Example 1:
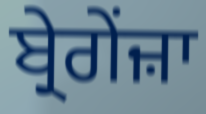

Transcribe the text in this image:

ਬ੍ਰੇਗੇਂਜ਼ਾ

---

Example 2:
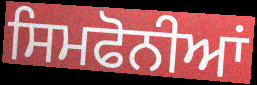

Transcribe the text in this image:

ਸਿਮਫੋਨੀਆਂ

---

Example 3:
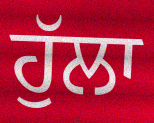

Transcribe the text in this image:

ਹੁੱਲਾ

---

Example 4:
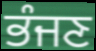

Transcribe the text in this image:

ਭੰਜਣ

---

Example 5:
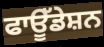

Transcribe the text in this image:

ਫਾਊੱਡੇਸ਼ਨ